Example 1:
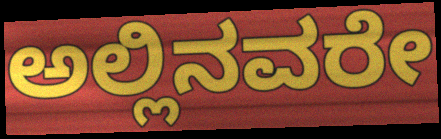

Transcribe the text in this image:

ಅಲ್ಲಿನವರೇ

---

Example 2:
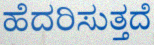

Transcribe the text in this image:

ಹೆದರಿಸುತ್ತದೆ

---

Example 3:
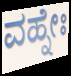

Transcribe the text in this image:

ವಹ್ನೇಃ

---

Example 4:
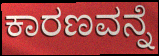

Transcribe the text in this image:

ಕಾರಣವನ್ನೆ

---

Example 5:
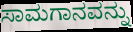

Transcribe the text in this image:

ಸಾಮಗಾನವನ್ನು